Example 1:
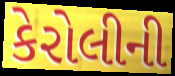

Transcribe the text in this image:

કેરોલીની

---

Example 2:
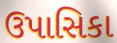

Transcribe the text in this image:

ઉપાસિકા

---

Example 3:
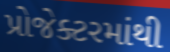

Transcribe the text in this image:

પ્રોજેક્ટરમાંથી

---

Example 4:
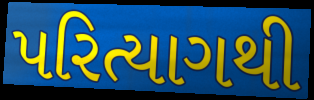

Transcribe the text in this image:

પરિત્યાગથી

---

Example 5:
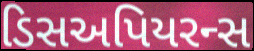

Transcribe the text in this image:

ડિસઅપિયરન્સ